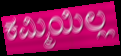
ಕಮ್ಮಿಯಿಲ್ಲ